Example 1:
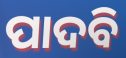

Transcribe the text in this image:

ପାଦବି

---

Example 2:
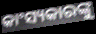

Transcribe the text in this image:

କାଂସ୍ୟକାରଙ୍କୁ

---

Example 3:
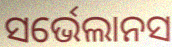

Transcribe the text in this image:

ସର୍ଭେଲାନସ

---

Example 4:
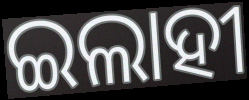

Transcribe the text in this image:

ଇଲାହୀ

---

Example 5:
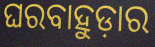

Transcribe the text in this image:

ଘରବାହୁଡ଼ାର